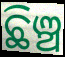
ଛିଞ୍ଚ